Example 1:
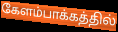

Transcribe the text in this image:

கேளம்பாக்கத்தில்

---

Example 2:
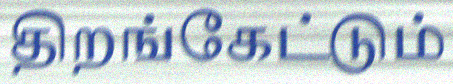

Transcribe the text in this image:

திறங்கேட்டும்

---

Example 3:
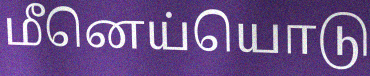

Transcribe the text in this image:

மீனெய்யொடு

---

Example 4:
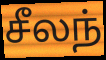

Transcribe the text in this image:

சீலந்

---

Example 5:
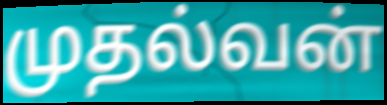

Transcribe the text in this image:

முதல்வன்